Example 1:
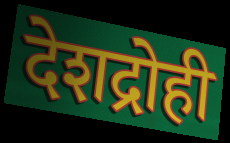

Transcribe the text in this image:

देशद्रोही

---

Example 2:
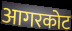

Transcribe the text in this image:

आगरकोट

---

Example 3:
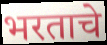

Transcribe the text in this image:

भरताचे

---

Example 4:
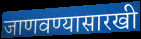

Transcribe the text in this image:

जाणवण्यासारखी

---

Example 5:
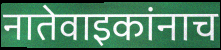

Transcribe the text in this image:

नातेवाइकांनाच